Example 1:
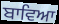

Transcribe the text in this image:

ਬਾਵਿਆ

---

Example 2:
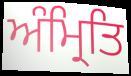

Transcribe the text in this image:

ਅੰਮ੍ਰਿਤਿ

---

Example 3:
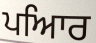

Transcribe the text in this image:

ਪਆਿਰ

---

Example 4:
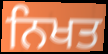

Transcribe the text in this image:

ਨਿਖਤ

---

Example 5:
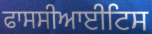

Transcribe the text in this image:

ਫਾਸਸੀਆਈਟਿਸ